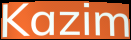
Kazim